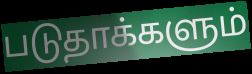
படுதாக்களும்